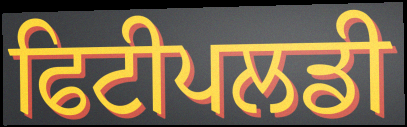
ਫਿਟੀਪਲਡੀ